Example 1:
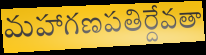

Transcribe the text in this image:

మహాగణపతిర్దేవతా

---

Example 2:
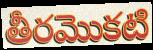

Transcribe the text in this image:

తీరమొకటి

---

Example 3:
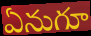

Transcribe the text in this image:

ఏనుగూ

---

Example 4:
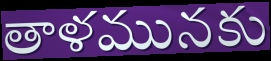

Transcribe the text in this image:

తాళమునకు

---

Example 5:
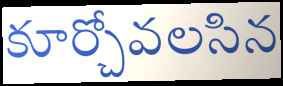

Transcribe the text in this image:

కూర్చోవలసిన